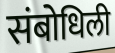
संबोधिली